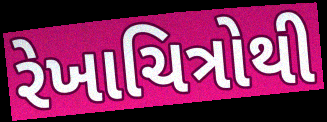
રેખાચિત્રોથી